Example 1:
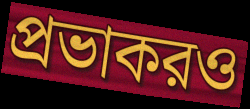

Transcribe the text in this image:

প্রভাকরও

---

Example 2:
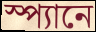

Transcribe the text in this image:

স্প্যানে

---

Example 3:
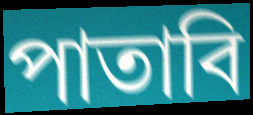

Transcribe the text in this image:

পাতাবি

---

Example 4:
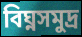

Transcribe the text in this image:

বিঘ্নসমুদ্র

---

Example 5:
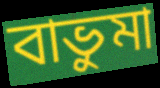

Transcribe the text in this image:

বাভুমা